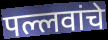
पल्लवांचे